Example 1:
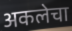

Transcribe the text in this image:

अकलेचा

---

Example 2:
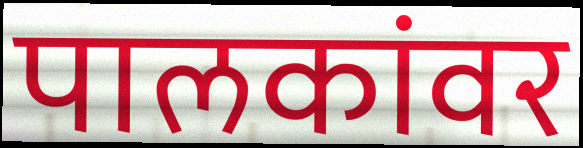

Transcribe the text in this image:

पालकांवर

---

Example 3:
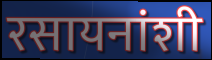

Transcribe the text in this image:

रसायनांशी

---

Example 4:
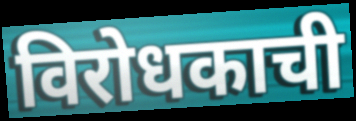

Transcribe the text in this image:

विरोधकाची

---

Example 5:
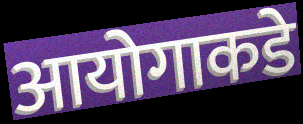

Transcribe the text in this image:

आयोगाकडे